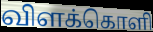
விளக்கொளி